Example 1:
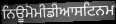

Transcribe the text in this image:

ਨਿਊਮੋਮੀਡੀਆਸਟਿਨਮ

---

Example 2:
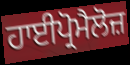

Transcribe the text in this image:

ਹਾਈਪ੍ਰੋਮੈਲੋਜ਼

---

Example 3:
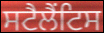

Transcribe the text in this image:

ਸਟੈਲੈਂਟਿਸ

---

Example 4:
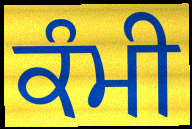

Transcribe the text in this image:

ਕੰਮੀ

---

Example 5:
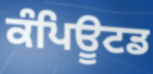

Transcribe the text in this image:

ਕੰਪਿਊਟਡ